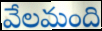
వేలమంది